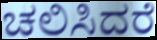
ಚಲಿಸಿದರೆ